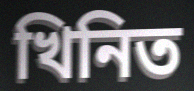
খিনিত